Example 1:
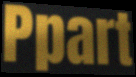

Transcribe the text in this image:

Ppart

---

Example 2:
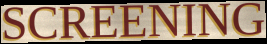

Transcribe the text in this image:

SCREENING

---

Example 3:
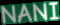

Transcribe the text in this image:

NANI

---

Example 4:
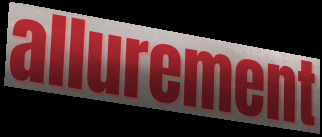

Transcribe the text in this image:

allurement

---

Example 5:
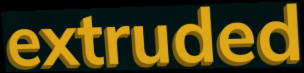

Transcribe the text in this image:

extruded